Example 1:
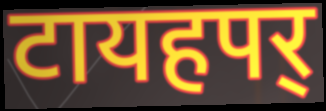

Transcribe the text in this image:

टायहपर्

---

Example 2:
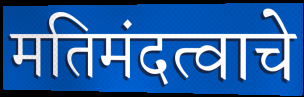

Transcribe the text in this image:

मतिमंदत्वाचे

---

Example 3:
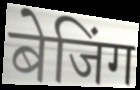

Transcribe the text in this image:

बेजिंग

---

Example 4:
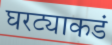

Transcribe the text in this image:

घरट्याकडं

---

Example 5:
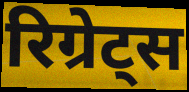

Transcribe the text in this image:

रिग्रेट्स